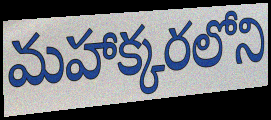
మహాక్కరలోని